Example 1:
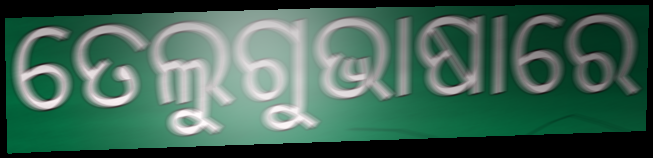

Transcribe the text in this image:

ତେଲୁଗୁଭାଷାରେ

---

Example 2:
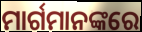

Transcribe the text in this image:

ମାର୍ଗମାନଙ୍କରେ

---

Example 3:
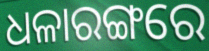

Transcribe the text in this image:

ଧଳାରଙ୍ଗରେ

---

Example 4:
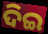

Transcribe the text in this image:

ଦିଇ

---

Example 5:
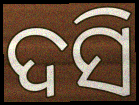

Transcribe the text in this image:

ଦସି